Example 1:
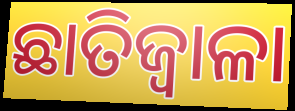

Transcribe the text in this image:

ଛାତିଜ୍ୱାଳା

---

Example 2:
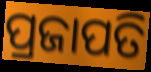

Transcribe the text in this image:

ପ୍ରଜାପତି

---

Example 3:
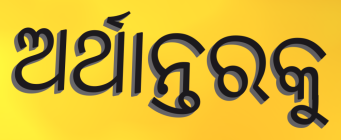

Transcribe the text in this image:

ଅର୍ଥାନ୍ତରକୁ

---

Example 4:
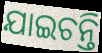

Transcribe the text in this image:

ଯାଇଚନ୍ତି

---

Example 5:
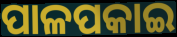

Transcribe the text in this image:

ପାଳପକାଇ